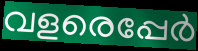
വളരെപ്പേർ